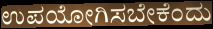
ಉಪಯೋಗಿಸಬೇಕೆಂದು